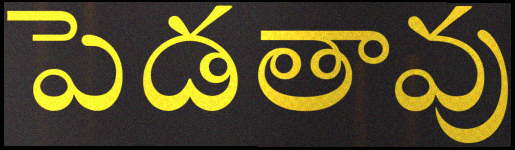
పెడతావు